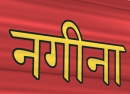
नगीना